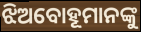
ଝିଅବୋହୂମାନଙ୍କୁ